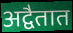
अद्वैतात